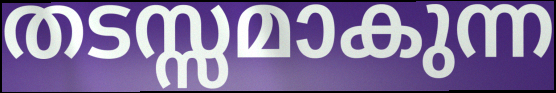
തടസ്സമാകുന്ന